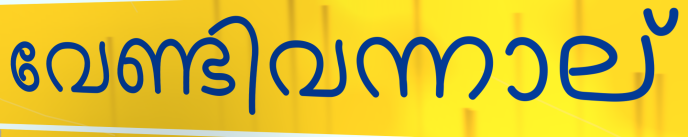
വേണ്ടിവന്നാല്